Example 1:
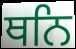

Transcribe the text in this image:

ਥਨਿ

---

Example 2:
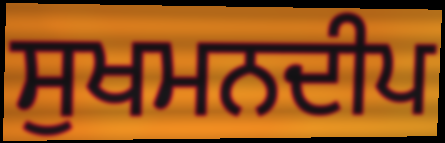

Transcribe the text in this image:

ਸੁਖਮਨਦੀਪ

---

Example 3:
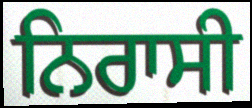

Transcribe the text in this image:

ਨਿਰਾਸੀ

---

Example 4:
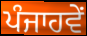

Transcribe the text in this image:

ਪੰਜਾਹਵੇਂ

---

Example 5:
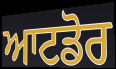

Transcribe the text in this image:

ਆਟਡੋਰ